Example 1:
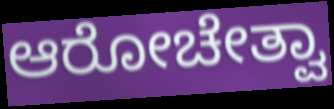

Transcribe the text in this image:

ಆರೋಚೇತ್ವಾ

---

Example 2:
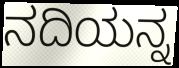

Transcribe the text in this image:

ನದಿಯನ್ನ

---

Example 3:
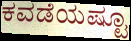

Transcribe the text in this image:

ಕವಡೆಯಷ್ಟೂ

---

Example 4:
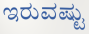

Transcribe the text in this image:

ಇರುವಷ್ಟು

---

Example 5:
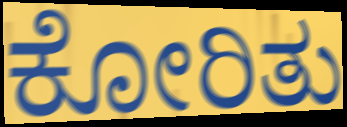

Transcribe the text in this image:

ಕೋರಿತು